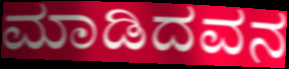
ಮಾಡಿದವನ